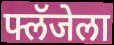
फ्लॅजेला